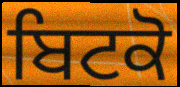
ਬਿਟਕੋ